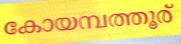
കോയമ്പത്തൂര്